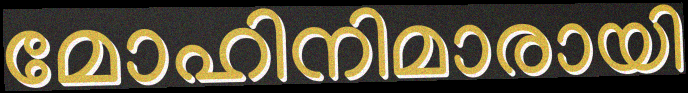
മോഹിനിമാരായി